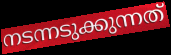
നടന്നടുക്കുന്നത്